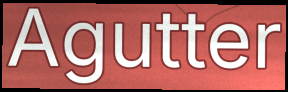
Agutter